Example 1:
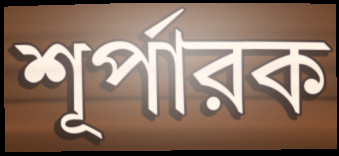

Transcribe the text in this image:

শূর্পারক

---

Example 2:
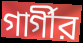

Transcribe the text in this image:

গার্গীর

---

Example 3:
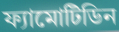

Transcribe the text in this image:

ফ্যামোটিডিন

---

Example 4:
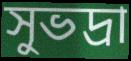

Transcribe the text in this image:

সুভদ্রা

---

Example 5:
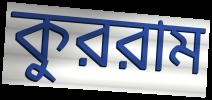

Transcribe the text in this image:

কুররাম